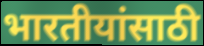
भारतीयांसाठी